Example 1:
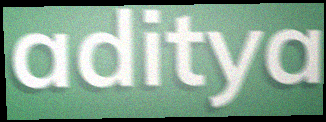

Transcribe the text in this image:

aditya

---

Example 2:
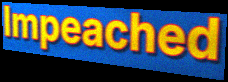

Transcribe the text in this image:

Impeached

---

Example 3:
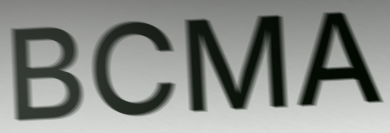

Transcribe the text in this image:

BCMA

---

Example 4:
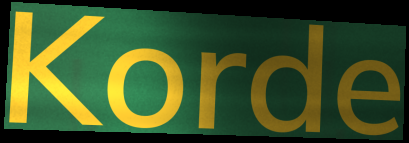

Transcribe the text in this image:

Korde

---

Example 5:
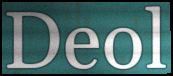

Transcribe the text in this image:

Deol